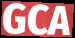
GCA